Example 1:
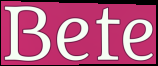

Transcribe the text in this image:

Bete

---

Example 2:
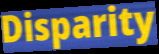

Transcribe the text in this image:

Disparity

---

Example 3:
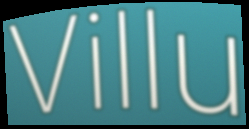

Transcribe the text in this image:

Villu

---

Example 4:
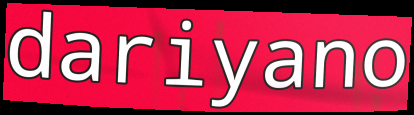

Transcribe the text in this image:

dariyano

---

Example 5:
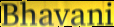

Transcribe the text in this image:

Bhavani